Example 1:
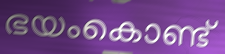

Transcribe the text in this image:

ഭയംകൊണ്ട്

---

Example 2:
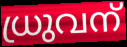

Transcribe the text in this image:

ധ്രുവന്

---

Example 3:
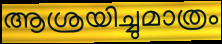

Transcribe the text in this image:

ആശ്രയിച്ചുമാത്രം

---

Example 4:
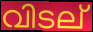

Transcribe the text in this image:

വിടല്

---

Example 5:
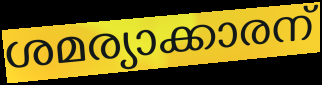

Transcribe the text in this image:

ശമര്യാക്കാരന്